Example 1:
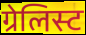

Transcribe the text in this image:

ग्रेलिस्ट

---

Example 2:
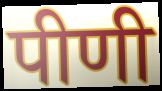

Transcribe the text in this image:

पीणी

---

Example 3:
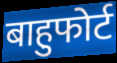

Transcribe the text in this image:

बाहुफोर्ट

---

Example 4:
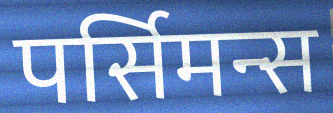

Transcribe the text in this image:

पर्सिमन्स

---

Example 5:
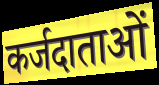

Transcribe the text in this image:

कर्जदाताओं